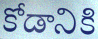
కోడానికి